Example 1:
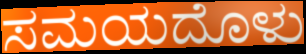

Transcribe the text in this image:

ಸಮಯದೊಳು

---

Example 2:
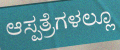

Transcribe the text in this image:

ಆಸ್ಪತ್ರೆಗಳಲ್ಲೂ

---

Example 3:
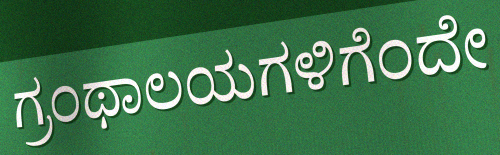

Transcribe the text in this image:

ಗ್ರಂಥಾಲಯಗಳಿಗೆಂದೇ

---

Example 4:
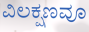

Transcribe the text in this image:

ವಿಲಕ್ಷಣವೂ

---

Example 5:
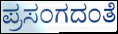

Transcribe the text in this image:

ಪ್ರಸಂಗದಂತೆ